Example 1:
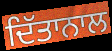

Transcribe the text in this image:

ਦਿੱਤਾਨਾਲ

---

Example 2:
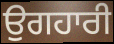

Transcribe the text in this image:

ਉਗਹਾਰੀ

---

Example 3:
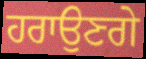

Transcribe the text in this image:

ਹਰਾਉਣਗੇ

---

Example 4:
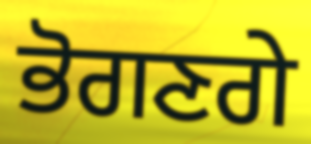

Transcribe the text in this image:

ਭੋਗਣਗੇ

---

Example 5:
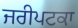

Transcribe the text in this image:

ਜਰੀਪਟਕਾ